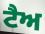
ਟੈਅ